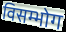
विसम्भोग